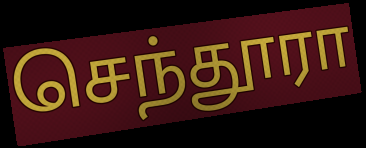
செந்தூரா